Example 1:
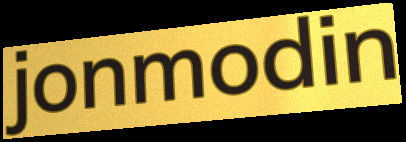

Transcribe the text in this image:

jonmodin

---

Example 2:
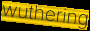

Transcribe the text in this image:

wuthering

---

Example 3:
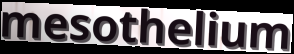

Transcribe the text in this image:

mesothelium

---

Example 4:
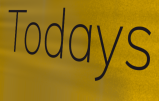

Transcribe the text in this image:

Todays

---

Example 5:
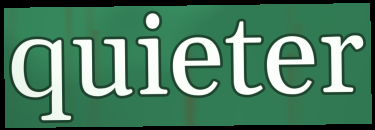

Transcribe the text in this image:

quieter